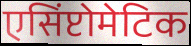
एसिंप्टोमेटिक